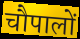
चौपालों